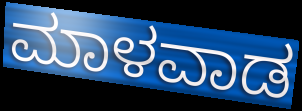
ಮಾಳವಾಡ